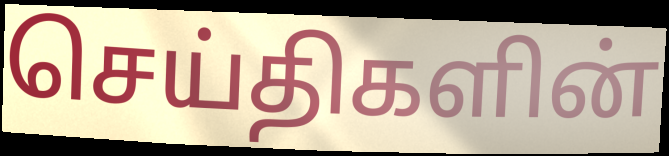
செய்திகளின்